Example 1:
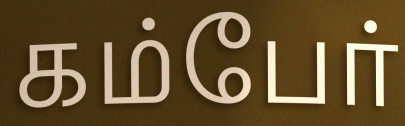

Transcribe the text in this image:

கம்பேர்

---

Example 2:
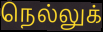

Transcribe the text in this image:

நெல்லுக்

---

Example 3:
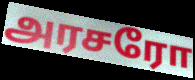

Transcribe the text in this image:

அரசரோ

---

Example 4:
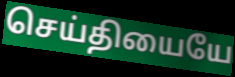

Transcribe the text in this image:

செய்தியையே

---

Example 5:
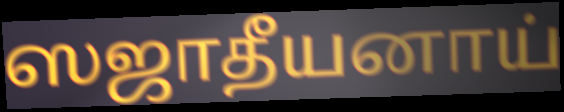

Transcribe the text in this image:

ஸஜாதீயனாய்